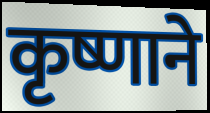
कृष्णाने